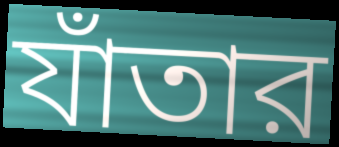
যাঁতার